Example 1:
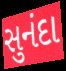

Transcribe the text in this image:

સુનંદા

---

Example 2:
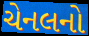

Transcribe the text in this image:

ચેનલનો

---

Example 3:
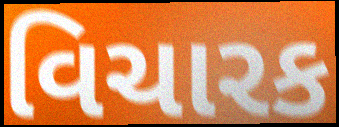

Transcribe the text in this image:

વિચારક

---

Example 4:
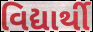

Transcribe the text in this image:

વિદ્યાર્થી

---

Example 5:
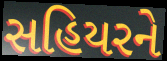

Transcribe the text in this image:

સહિયરને